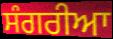
ਸੰਗਰੀਆ